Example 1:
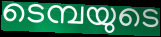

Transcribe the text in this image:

ടെമ്പയുടെ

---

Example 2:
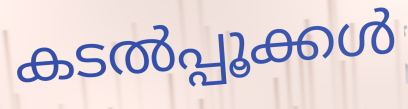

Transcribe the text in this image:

കടൽപ്പൂക്കൾ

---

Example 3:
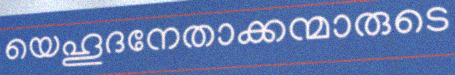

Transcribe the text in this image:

യെഹൂദനേതാക്കന്മാരുടെ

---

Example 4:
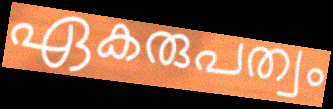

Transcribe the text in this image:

ഏകരുപത്വം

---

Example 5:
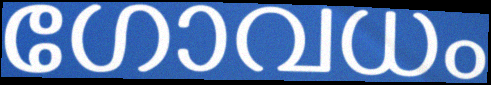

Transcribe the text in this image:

ഗോവധം